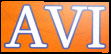
AVI